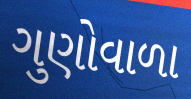
ગુણોવાળા